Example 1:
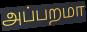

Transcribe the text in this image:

அப்பறமா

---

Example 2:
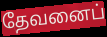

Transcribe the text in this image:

தேவனைப்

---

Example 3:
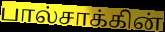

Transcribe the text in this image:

பால்சாக்கின்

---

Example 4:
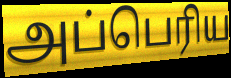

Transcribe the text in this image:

அப்பெரிய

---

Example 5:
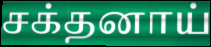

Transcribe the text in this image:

சக்தனாய்